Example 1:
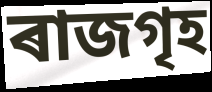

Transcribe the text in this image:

ৰাজগৃহ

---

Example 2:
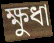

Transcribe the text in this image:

ক্ষুধা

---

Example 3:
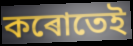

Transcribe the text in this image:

কৰোতেই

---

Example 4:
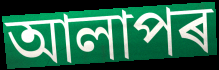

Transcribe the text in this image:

আলাপৰ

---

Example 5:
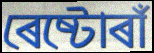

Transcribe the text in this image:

ৰেষ্টোৰাঁ